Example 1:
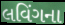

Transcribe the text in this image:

લવિંગના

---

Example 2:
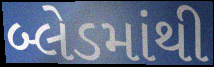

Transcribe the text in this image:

બ્લેડમાંથી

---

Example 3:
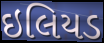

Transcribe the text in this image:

ઇલિયડ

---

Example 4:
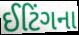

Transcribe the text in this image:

ઈટિંગના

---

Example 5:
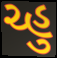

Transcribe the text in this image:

ચ્હુ